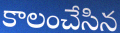
కాలంచేసిన